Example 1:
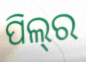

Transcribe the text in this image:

ପିଲ୍‌ର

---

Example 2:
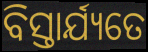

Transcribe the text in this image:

ବିସ୍ତାର୍ଯ୍ୟତେ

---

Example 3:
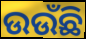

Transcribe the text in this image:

ଉଉଁଛି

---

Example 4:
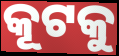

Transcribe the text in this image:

କୂଟକୁ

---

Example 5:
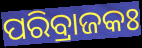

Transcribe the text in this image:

ପରିବ୍ରାଜକଃ